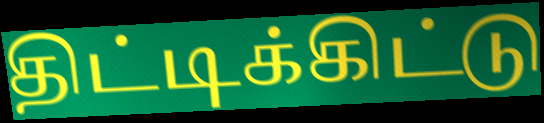
திட்டிக்கிட்டு